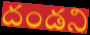
దండని